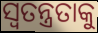
ସ୍ୱତନ୍ତ୍ରତାକୁ